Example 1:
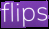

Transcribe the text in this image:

flips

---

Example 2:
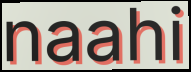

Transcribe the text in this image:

naahi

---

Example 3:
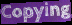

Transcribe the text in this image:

Copying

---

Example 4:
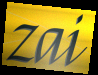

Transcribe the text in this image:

zai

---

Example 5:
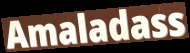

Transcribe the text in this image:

Amaladass